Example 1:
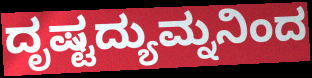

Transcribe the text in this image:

ದೃಷ್ಟದ್ಯುಮ್ನನಿಂದ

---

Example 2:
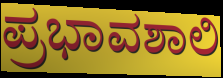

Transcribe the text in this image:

ಪ್ರಭಾವಶಾಲಿ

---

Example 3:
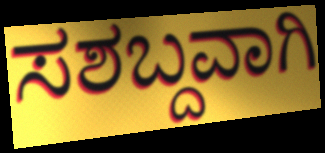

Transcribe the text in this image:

ಸಶಬ್ದವಾಗಿ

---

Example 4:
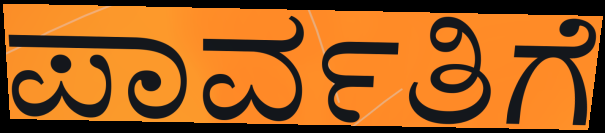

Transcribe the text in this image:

ಪಾರ್ವತಿಗೆ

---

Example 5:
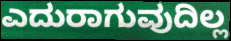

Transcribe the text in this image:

ಎದುರಾಗುವುದಿಲ್ಲ